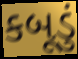
કબૂડું